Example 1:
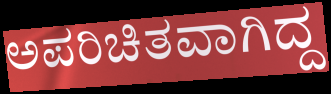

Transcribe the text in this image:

ಅಪರಿಚಿತವಾಗಿದ್ದ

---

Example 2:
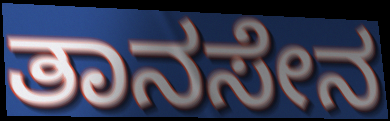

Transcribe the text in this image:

ತಾನಸೇನ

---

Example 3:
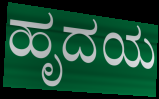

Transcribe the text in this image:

ಹೃದಯ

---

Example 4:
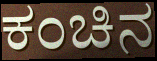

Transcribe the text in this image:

ಕಂಚಿನ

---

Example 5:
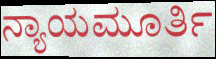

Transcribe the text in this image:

ನ್ಯಾಯಮೂರ್ತಿ